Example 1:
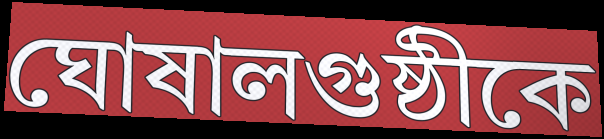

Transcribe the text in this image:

ঘোষালগুষ্ঠীকে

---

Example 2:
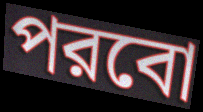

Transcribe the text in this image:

পরবো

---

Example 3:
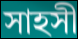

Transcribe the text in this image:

সাহসী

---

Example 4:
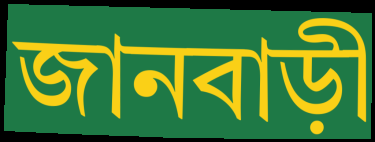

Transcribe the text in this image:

জানবাড়ী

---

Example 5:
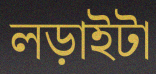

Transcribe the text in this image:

লড়াইটা